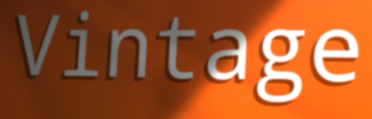
Vintage